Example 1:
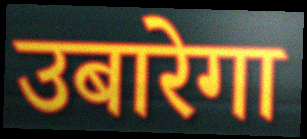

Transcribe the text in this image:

उबारेगा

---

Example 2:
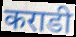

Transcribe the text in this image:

कराडी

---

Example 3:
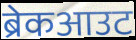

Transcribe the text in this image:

ब्रेकआउट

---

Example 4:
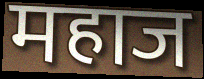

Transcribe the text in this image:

महाज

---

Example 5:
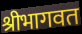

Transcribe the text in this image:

श्रीभागवत